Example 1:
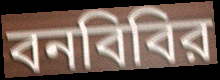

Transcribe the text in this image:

বনবিবির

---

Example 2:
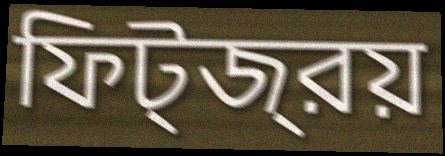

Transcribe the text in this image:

ফিট্‌জ্‌রয়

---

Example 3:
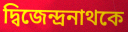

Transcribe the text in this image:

দ্বিজেন্দ্রনাথকে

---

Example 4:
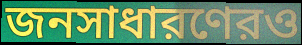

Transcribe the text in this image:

জনসাধারণেরও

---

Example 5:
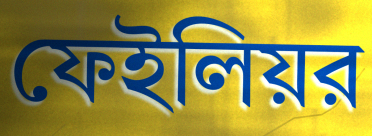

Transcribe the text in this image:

ফেইলিয়র